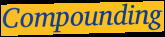
Compounding